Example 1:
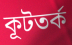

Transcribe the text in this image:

কূটতর্ক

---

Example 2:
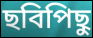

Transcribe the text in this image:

ছবিপিছু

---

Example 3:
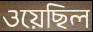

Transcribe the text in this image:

ওয়েছিল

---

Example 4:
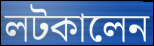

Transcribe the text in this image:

লটকালেন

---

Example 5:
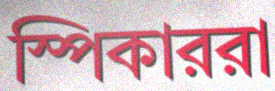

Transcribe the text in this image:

স্পিকাররা